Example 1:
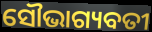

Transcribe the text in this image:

ସୌଭାଗ୍ୟବତୀ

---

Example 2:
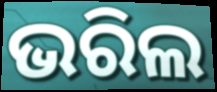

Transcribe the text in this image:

ଭରିଲ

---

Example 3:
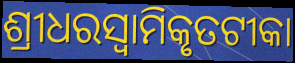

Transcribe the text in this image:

ଶ୍ରୀଧରସ୍ଵାମିକୃତଟୀକା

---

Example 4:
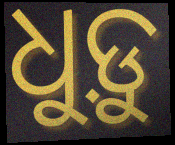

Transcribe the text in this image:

ଧୁଡ଼ୁ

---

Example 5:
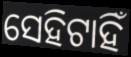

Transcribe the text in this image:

ସେହିଟାହିଁ